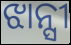
ଝାନ୍ସୀ